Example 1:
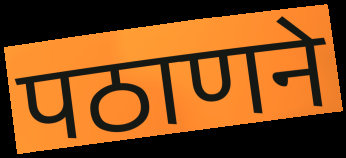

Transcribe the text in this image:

पठाणने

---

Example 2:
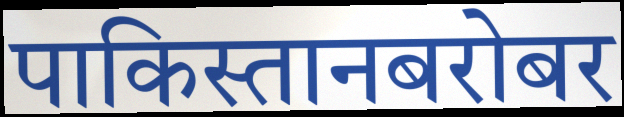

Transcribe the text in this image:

पाकिस्तानबरोबर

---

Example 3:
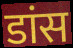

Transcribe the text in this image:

डांस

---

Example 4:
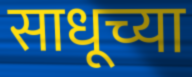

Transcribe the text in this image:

साधूच्या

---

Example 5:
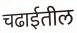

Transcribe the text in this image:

चढाईतील